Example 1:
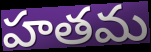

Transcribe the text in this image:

హతమ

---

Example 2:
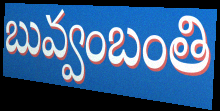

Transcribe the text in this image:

బువ్వంబంతి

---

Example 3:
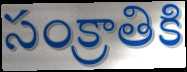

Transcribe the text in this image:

సంక్రాతికి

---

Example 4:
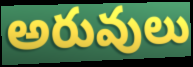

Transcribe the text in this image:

అరువులు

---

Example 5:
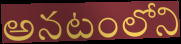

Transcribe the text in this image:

అనటంలోని